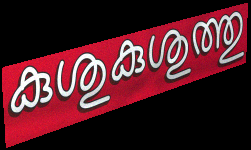
കുശുകുശുത്തു